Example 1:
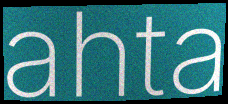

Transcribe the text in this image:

ahta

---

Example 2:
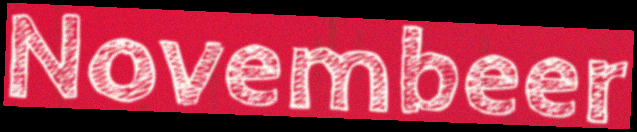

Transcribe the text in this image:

Novembeer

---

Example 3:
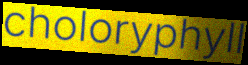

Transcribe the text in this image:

choloryphyll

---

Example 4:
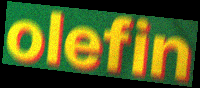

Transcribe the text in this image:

olefin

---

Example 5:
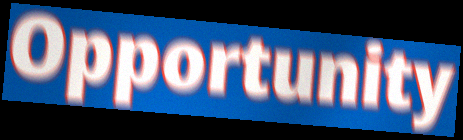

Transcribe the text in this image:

Opportunity